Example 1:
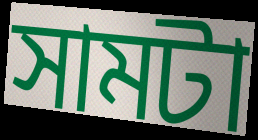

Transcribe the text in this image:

সামটা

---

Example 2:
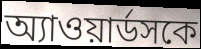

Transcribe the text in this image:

অ্যাওয়ার্ডসকে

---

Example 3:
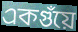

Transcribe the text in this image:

একগুঁয়ে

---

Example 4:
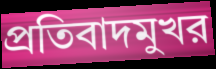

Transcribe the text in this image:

প্রতিবাদমুখর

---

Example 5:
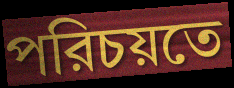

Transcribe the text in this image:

পরিচয়তে